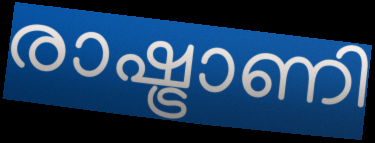
രാഷ്ട്രാണി